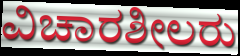
ವಿಚಾರಶೀಲರು